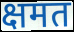
क्षमत